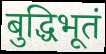
बुद्धिभूतं